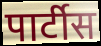
पार्टीस